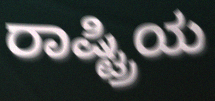
ರಾಷ್ಟ್ರಿಯ